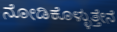
ನೋಡಿಕೊಳ್ಳುತ್ತೇನೆ